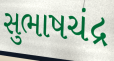
સુભાષચંદ્ર